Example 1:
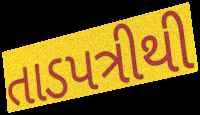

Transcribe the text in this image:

તાડપત્રીથી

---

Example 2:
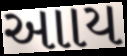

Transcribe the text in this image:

આાય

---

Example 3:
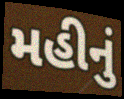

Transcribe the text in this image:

મહીનું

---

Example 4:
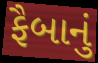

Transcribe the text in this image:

ફૈબાનું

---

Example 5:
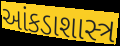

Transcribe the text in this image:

આંકડાશાસ્ત્ર